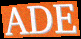
ADE